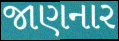
જાણનાર